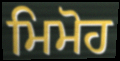
ਮਿਮੋਹ